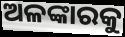
ଅଳଙ୍କାରକୁ